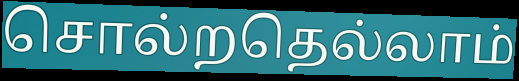
சொல்றதெல்லாம்